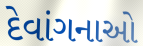
દેવાંગનાઓ